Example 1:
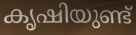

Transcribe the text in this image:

കൃഷിയുണ്ട്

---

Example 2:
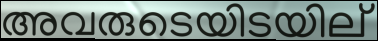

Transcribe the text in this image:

അവരുടെയിടയില്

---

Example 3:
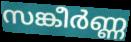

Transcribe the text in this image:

സങ്കീർണ്ണ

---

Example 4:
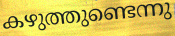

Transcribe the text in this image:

കഴുത്തുണ്ടെന്നു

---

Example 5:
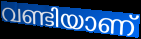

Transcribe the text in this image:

വണ്ടിയാണ്